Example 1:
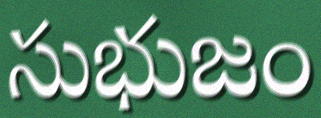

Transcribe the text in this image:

సుభుజం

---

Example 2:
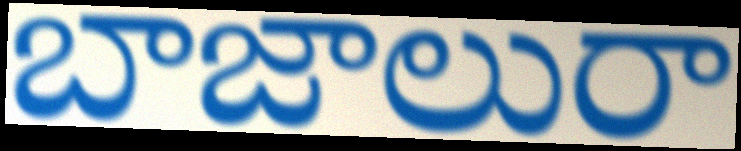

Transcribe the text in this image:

బాజాలురా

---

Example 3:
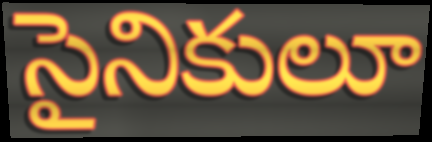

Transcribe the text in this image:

సైనికులూ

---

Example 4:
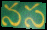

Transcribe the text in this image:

నస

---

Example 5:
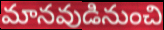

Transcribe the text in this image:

మానవుడినుంచి